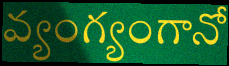
వ్యంగ్యంగానో